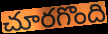
చూరగొంది